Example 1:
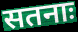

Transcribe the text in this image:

सतनाः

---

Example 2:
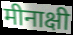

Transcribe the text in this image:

मीनाक्षी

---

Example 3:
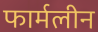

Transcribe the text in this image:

फार्मलीन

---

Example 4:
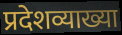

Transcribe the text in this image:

प्रदेशव्याख्या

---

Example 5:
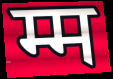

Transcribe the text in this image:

म्म